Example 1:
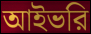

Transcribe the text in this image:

আইভরি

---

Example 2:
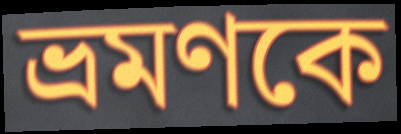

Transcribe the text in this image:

ভ্রমণকে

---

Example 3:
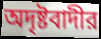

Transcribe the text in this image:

অদৃষ্টবাদীর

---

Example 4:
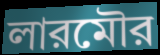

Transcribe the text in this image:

লারমৌর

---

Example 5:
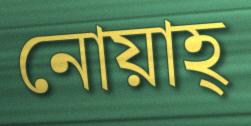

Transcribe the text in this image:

নোয়াহ্